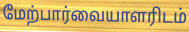
மேற்பார்வையாளரிடம்